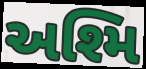
અશ્મિ